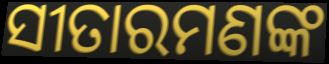
ସୀତାରମଣଙ୍କ